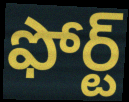
ఫోర్ట్